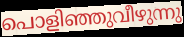
പൊളിഞ്ഞുവീഴുന്നു